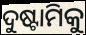
ଦୁଷ୍ଟାମିକୁ